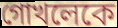
গোখলেকে